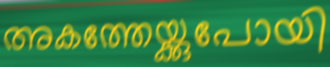
അകത്തേയ്ക്കുപോയി